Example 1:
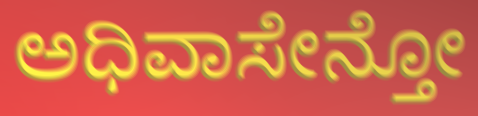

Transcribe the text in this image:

ಅಧಿವಾಸೇನ್ತೋ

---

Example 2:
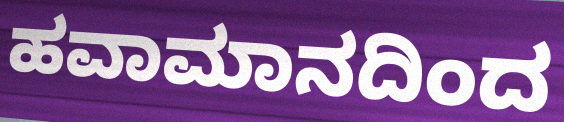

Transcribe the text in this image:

ಹವಾಮಾನದಿಂದ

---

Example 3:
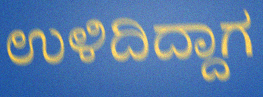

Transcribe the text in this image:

ಉಳಿದಿದ್ದಾಗ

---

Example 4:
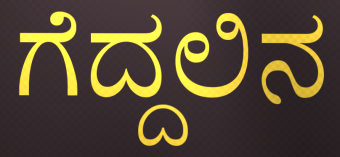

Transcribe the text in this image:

ಗೆದ್ದಲಿನ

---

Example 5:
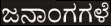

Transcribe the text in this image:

ಜನಾಂಗಗಳೆ